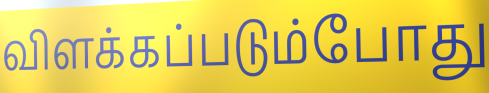
விளக்கப்படும்போது